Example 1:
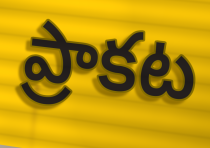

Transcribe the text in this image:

ప్రాకట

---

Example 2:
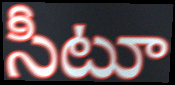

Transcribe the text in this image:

సీటూ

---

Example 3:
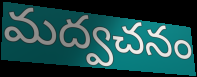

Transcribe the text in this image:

మద్వచనం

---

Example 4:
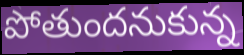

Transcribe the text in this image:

పోతుందనుకున్న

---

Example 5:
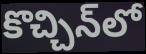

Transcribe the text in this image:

కొచ్చిన్‌లో